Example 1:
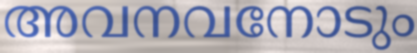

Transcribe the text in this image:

അവനവനോടും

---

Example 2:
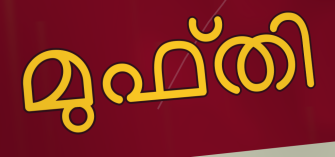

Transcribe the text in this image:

മുഫ്തി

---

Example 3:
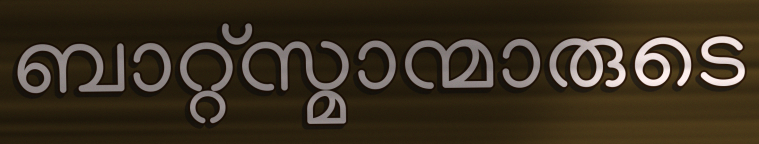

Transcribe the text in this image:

ബാറ്റ്സ്മാന്മാരുടെ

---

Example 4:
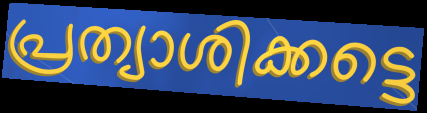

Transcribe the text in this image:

പ്രത്യാശിക്കട്ടെ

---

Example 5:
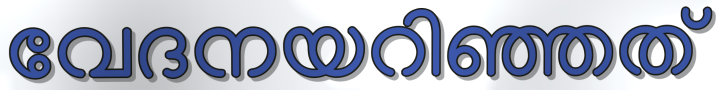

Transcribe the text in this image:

വേദനയറിഞ്ഞത്